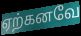
ஏற்கனவே